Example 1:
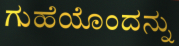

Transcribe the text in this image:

ಗುಹೆಯೊಂದನ್ನು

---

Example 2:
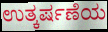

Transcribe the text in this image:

ಉತ್ಕರ್ಷಣೆಯ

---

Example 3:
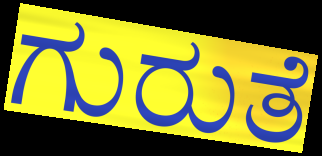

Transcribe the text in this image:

ಗುರುತೆ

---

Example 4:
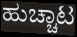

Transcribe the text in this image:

ಹುಚ್ಚಾಟ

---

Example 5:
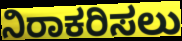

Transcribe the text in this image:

ನಿರಾಕರಿಸಲು